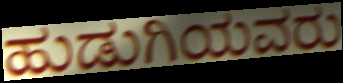
ಹುಡುಗಿಯವರು